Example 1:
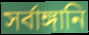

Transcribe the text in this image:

সর্বাঙ্গানি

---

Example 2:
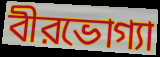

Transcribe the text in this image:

বীরভোগ্যা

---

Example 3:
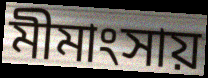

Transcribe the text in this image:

মীমাংসায়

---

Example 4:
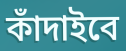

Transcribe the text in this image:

কাঁদাইবে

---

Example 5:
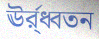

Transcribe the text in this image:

ঊর্র্ধ্বতন